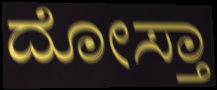
ದೋಸ್ತಾ